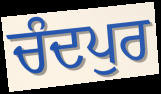
ਚੰਦਪੁਰ